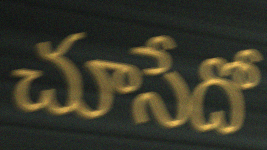
చూసేదో